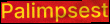
Palimpsest